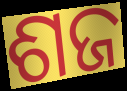
ଶଜ